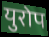
युरोप